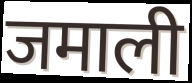
जमाली